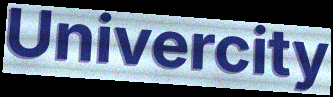
Univercity